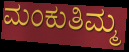
ಮಂಕುತಿಮ್ಮ